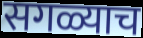
सगळ्याच